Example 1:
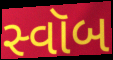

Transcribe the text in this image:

સ્વૉબ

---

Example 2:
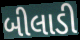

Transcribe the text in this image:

બીલાડી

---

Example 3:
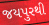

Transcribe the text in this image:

જયપુરથી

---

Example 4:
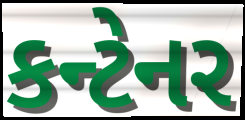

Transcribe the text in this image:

કન્ટેનર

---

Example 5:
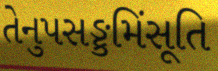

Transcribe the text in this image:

તેનુપસઙ્કમિંસૂતિ